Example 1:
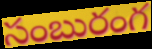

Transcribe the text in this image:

సంబురంగ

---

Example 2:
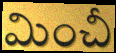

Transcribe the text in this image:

మించీ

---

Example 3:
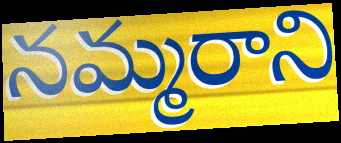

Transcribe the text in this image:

నమ్మరాని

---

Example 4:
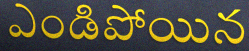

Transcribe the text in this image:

ఎండిపోయిన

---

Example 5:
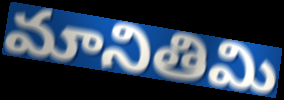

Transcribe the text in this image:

మానితిమి